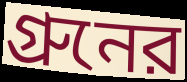
গ্রুনের